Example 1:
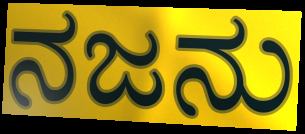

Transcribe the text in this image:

ನಜನು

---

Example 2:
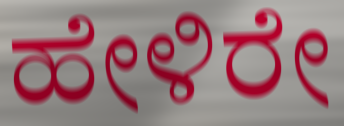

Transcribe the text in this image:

ಹೇಳಿರೇ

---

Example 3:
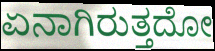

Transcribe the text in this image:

ಏನಾಗಿರುತ್ತದೋ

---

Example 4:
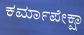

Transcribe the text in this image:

ಕರ್ಮಾಪೇಕ್ಷಾ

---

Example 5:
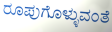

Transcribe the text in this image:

ರೂಪುಗೊಳ್ಳುವಂತೆ